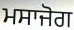
ਮਸਾਜੋਗ